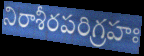
నిరాశీరపరిగ్రహః